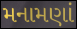
મનામણાં